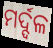
ମର୍ଦ୍ଦଳ